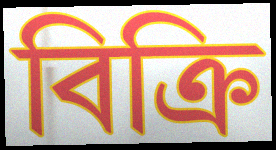
বিক্ৰি